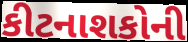
કીટનાશકોની